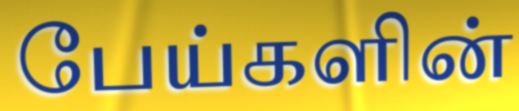
பேய்களின்